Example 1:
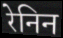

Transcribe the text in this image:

रेनिन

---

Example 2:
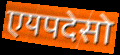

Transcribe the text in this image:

एयपदेसो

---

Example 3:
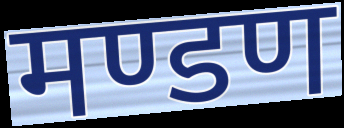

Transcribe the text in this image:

मण्डण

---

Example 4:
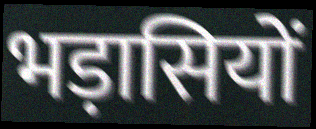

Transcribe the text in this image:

भड़ासियों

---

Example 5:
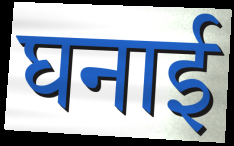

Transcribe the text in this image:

घनाई